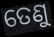
ତେଣୁ